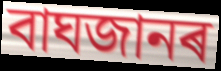
বাঘজানৰ